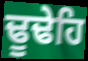
ਢੂਢੇਹਿ